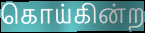
கொய்கின்ற